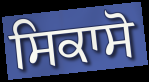
ਸਿਕਾਸੋ